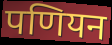
पणियन